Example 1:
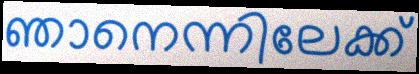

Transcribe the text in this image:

ഞാനെന്നിലേക്ക്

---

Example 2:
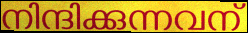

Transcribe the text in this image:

നിന്ദിക്കുന്നവന്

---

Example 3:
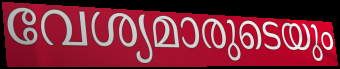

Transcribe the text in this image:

വേശ്യമാരുടെയും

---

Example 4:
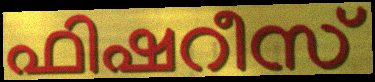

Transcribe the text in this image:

ഫിഷറീസ്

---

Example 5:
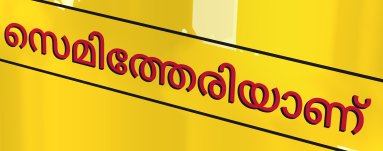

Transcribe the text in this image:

സെമിത്തേരിയാണ്